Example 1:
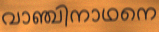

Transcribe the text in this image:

വാഞ്ചിനാഥനെ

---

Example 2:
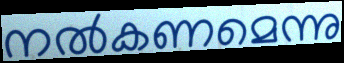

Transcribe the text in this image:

നൽകണമെന്നു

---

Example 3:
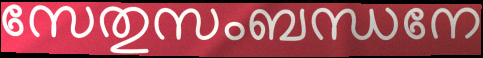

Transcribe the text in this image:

സേതുസംബന്ധനേ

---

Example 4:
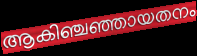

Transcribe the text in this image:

ആകിഞ്ചഞ്ഞായതനം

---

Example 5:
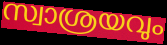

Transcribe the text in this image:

സ്വാശ്രയവും